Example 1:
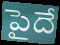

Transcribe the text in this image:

పైదే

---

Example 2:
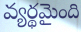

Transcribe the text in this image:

వ్యర్థమైంది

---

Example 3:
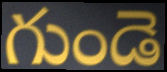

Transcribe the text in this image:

గుండె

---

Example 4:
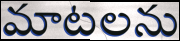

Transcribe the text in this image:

మాటలను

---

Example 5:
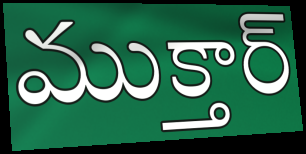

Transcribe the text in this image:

ముక్తార్